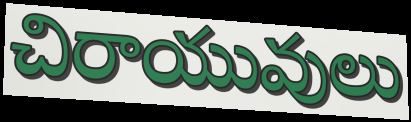
చిరాయువులు